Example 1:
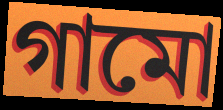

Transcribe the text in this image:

গামো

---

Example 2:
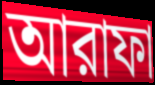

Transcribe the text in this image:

আরাফা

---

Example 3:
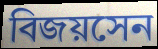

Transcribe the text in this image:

বিজয়সেন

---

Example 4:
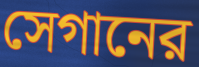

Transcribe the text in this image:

সেগানের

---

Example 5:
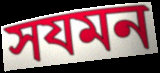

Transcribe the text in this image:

সযমন